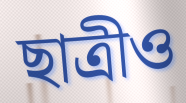
ছাত্রীও